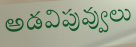
అడవిపువ్వులు